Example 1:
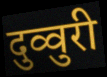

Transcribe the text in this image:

दुव्वुरी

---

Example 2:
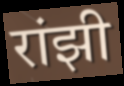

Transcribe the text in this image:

रांझी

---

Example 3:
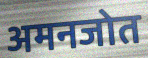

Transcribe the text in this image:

अमनजोत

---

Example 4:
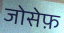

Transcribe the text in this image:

जोसेफ़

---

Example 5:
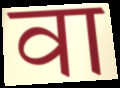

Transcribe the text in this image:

वा